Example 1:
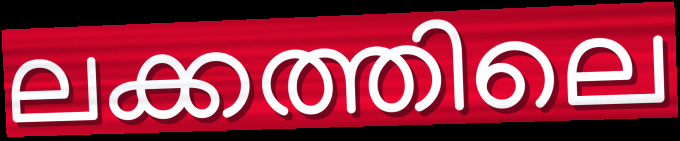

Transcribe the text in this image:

ലക്കത്തിലെ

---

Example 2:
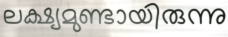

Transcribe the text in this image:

ലക്ഷ്യമുണ്ടായിരുന്നു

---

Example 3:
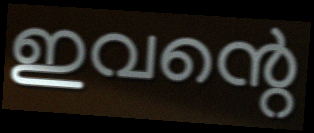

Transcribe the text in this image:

ഇവന്റെ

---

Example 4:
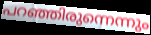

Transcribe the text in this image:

പറഞ്ഞിരുന്നെന്നും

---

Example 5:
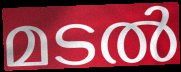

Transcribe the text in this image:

മടൽ